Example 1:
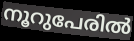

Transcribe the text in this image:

നൂറുപേരിൽ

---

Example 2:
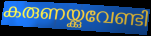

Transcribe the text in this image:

കരുണയ്ക്കുവേണ്ടി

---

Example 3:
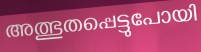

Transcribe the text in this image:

അത്ഭുതപ്പെട്ടുപോയി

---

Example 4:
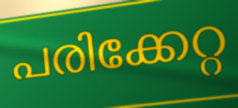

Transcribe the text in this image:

പരിക്കേറ്റ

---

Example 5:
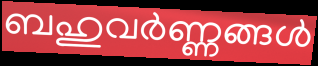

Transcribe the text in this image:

ബഹുവർണ്ണങ്ങൾ